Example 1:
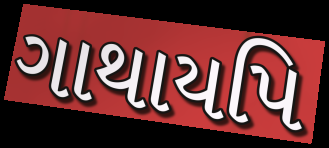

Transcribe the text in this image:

ગાથાયપિ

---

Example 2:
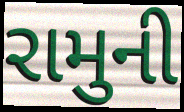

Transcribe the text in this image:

રામુની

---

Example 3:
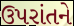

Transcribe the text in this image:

ઉપરાંતને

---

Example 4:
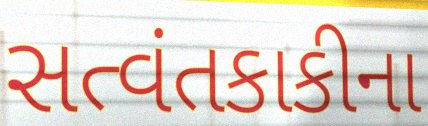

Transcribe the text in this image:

સત્વંતકાકીના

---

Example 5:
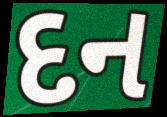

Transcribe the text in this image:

દન